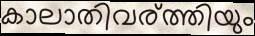
കാലാതിവര്ത്തിയും